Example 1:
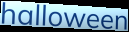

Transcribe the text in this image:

halloween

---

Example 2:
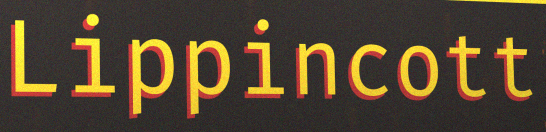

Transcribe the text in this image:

Lippincott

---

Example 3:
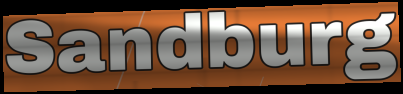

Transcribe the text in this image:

Sandburg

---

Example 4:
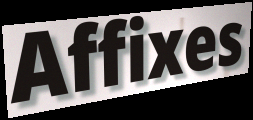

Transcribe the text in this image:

Affixes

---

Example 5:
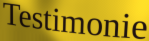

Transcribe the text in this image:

Testimonie